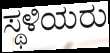
ಸ್ಥಳಿಯರು